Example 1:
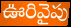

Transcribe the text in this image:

ఊరివైపు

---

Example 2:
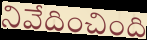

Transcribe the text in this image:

నివేదించింది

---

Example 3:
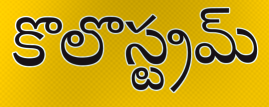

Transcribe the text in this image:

కొలొస్ట్రమ్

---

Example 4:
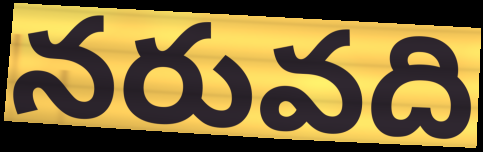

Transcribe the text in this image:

నరువది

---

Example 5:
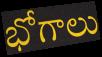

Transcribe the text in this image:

భోగాలు